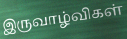
இருவாழ்விகள்